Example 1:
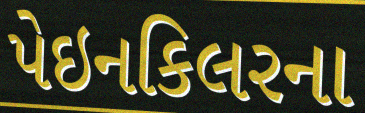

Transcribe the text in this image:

પેઇનકિલરના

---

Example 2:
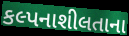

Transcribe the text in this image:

કલ્પનાશીલતાના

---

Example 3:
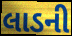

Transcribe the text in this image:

લાડની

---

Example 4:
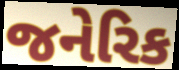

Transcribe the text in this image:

જનેરિક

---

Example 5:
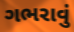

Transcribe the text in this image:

ગભરાવું